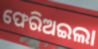
ଫେରିଅଇଲା